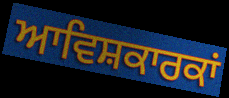
ਆਵਿਸ਼ਕਾਰਕਾਂ